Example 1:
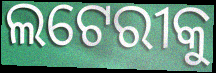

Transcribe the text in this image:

ଲଟେରୀକୁ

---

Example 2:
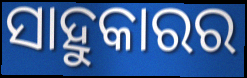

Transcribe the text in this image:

ସାହୁକାରର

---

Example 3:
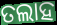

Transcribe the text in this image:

ତଲାହ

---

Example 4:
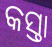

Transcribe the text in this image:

କସ୍ତା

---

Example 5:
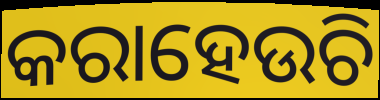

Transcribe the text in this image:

କରାହେଉଚି